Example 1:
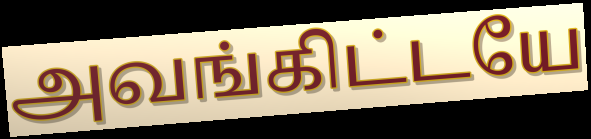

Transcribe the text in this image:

அவங்கிட்டயே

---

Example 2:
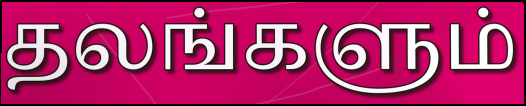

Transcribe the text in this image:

தலங்களும்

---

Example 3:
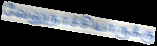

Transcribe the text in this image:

வேலுநாச்சியாருக்கு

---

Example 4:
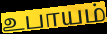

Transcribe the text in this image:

உபாயம்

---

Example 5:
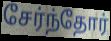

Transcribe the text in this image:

சேர்ந்தோர்